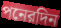
পনেরদিন